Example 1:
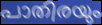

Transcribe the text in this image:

പാതിരയും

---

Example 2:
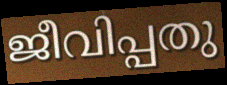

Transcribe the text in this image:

ജീവിപ്പതു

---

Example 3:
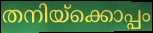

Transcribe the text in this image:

തനിയ്ക്കൊപ്പം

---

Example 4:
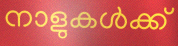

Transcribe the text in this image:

നാളുകൾക്ക്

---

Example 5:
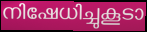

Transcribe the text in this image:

നിഷേധിച്ചുകൂടാ